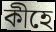
কীহে